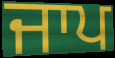
ਜਾਪ